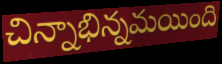
చిన్నాభిన్నమయింది